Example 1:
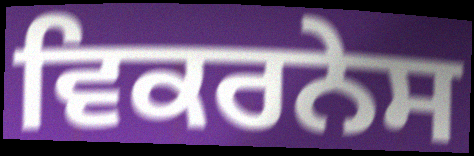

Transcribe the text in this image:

ਵਿਕਰਨੇਸ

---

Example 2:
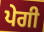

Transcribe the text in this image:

ਪੇਗੀ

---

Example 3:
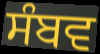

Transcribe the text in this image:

ਸੰਬਵ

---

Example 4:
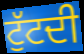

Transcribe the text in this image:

ਟੁੱਟਦੀ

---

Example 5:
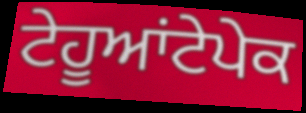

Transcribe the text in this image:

ਟੇਹੂਆਂਟੇਪੇਕ